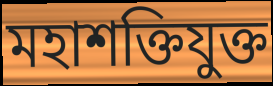
মহাশক্তিযুক্ত